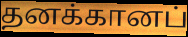
தனக்கானப்